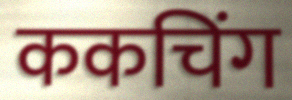
ककचिंग